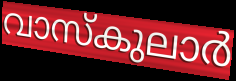
വാസ്കുലാർ